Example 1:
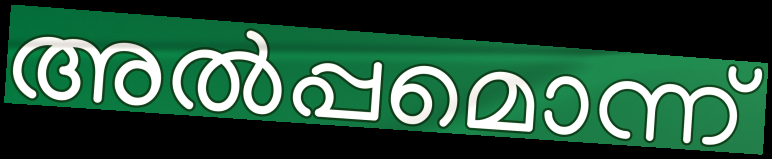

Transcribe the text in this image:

അൽപ്പമൊന്ന്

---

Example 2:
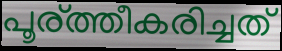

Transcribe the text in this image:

പൂര്ത്തീകരിച്ചത്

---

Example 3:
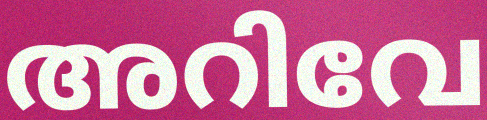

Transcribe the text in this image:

അറിവേ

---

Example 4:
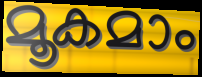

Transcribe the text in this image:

മൂകമാം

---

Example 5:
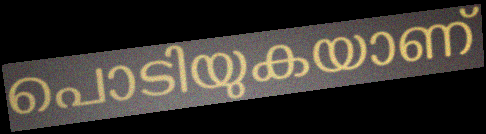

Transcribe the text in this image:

പൊടിയുകയാണ്